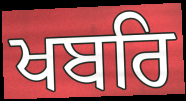
ਖਬਰਿ